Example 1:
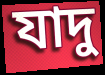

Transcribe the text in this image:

যাদু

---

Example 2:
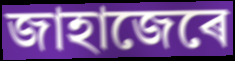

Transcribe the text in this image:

জাহাজেৰে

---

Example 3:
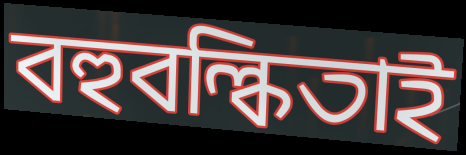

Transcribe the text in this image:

বহুবল্কিতাই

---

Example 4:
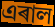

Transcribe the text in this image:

এৰাল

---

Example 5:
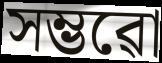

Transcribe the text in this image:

সম্ভৱো